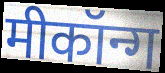
मीकॉन्ग